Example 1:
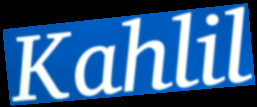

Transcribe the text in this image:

Kahlil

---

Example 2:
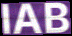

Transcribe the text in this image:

IAB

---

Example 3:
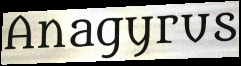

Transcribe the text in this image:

Anagyrus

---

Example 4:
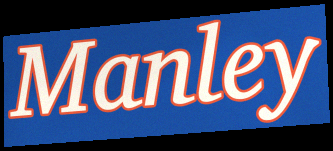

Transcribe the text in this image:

Manley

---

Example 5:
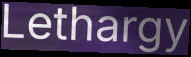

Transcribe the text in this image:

Lethargy